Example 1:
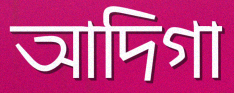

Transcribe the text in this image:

আদিগা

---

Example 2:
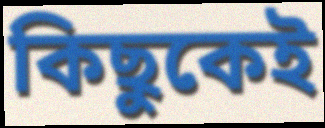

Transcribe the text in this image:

কিছুকেই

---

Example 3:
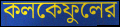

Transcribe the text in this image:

কলকেফুলের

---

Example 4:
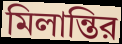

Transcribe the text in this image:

মিলান্তির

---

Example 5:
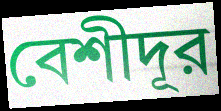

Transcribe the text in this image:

বেশীদূর